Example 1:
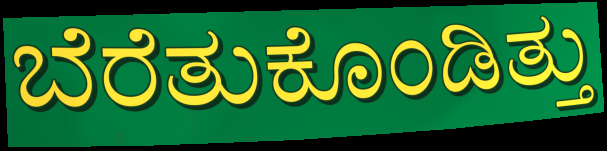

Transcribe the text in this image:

ಬೆರೆತುಕೊಂಡಿತ್ತು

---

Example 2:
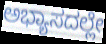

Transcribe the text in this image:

ಅಭ್ಯಾಸದಲ್ಲೇ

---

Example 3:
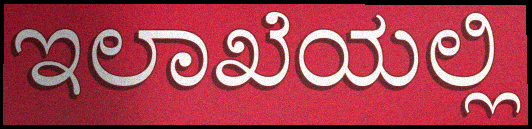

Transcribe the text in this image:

ಇಲಾಖೆಯಲ್ಲಿ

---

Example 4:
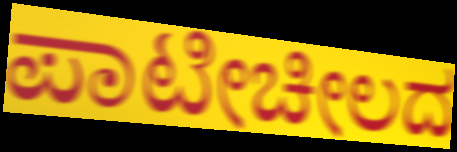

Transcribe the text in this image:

ಪಾಟೀಚೀಲದ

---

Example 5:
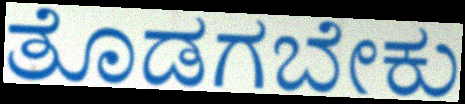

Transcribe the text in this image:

ತೊಡಗಬೇಕು